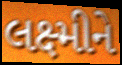
લક્ષ્મીને